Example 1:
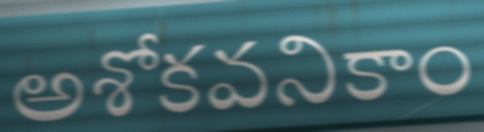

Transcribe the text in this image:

అశోకవనికాం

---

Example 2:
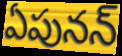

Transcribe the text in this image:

ఏపునన్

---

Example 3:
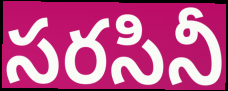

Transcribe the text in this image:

సరసినీ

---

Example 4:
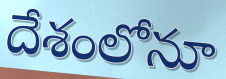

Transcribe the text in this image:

దేశంలోనూ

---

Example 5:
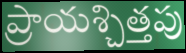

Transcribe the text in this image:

ప్రాయశ్చిత్తపు